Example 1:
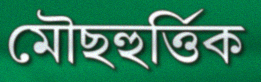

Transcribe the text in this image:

মৌছহুৰ্ত্তিক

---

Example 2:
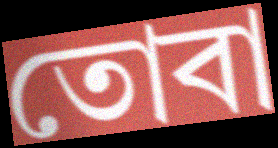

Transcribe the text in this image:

তোবা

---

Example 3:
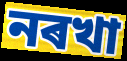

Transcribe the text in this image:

নৰখা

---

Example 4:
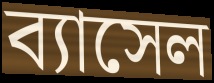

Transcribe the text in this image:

ব্যাসেল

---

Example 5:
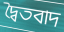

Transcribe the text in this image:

দ্বৈতবাদ